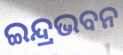
ଇନ୍ଦ୍ରଭବନ